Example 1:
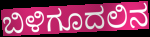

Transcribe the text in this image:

ಬಿಳಿಗೂದಲಿನ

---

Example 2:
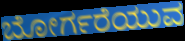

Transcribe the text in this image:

ಬೋರ್ಗರೆಯುವ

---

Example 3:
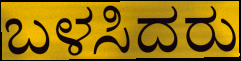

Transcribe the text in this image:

ಬಳಸಿದರು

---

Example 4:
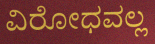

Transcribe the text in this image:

ವಿರೋಧವಲ್ಲ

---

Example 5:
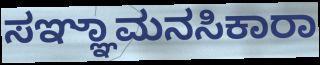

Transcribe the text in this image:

ಸಞ್ಞಾಮನಸಿಕಾರಾ